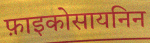
फ़ाइकोसायनिन